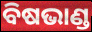
ବିଷଭାଣ୍ଡ